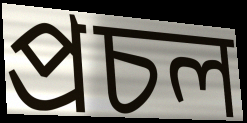
প্রচল